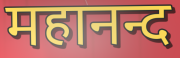
महानन्द